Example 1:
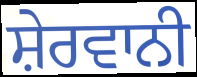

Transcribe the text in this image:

ਸ਼ੇਰਵਾਨੀ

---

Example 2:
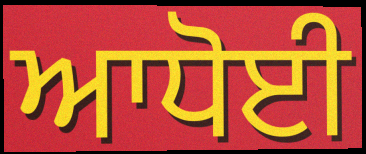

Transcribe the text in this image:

ਆਧੋਈ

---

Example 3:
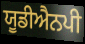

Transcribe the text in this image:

ਯੂਡੀਐਨਪੀ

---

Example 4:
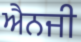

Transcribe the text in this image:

ਐਨਜੀ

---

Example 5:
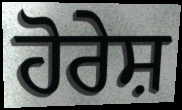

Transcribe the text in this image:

ਹੋਰੇਸ਼